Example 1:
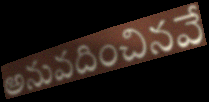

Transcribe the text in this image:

అనువదించినవే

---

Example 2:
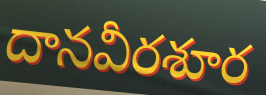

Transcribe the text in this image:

దానవీరశూర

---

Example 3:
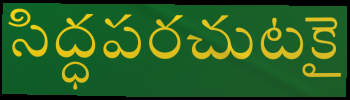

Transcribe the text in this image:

సిద్ధపరచుటకై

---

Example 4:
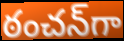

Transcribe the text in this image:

ఠంచన్‌గా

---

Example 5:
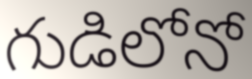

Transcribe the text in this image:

గుడిలోనో